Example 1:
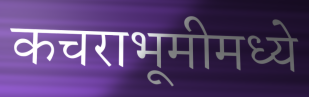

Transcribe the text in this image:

कचराभूमीमध्ये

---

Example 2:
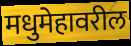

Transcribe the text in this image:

मधुमेहावरील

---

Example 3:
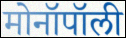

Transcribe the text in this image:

मोनॉपॉली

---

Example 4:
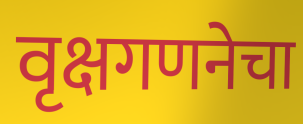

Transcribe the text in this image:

वृक्षगणनेचा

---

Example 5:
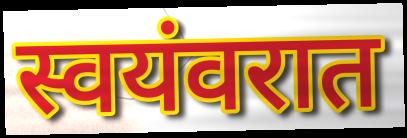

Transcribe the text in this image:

स्वयंवरात